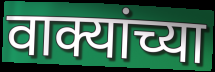
वाक्यांच्या